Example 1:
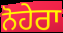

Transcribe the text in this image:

ਨੋਹੇਰਾ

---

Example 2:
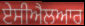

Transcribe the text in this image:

ਏਸੀਐਲਆਰ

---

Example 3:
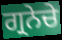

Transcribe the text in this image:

ਗ੍ਰਨੇਚੇ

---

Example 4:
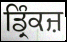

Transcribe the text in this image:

ਡ੍ਰਿੰਕਜ਼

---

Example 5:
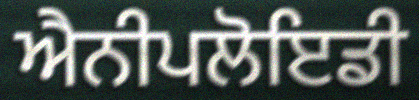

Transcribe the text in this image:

ਐਨੀਪਲੋਇਡੀ